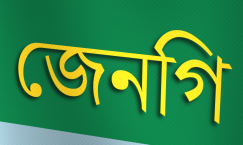
জেনগি